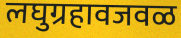
लघुग्रहावजवळ